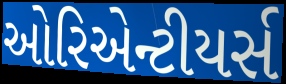
ઓરિએન્ટીયર્સ